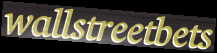
wallstreetbets